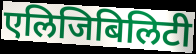
एलिजिबिलिटी